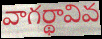
వాగర్థావివ